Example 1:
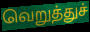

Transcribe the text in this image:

வெறுத்துச்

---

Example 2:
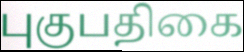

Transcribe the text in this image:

புகுபதிகை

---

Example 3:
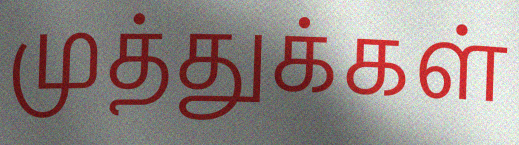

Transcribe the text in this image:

முத்துக்கள்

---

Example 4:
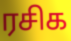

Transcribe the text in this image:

ரசிக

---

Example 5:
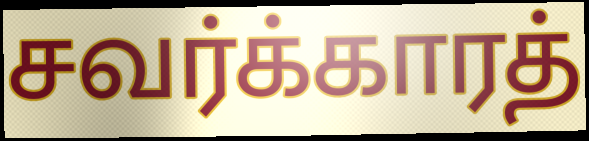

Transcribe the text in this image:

சவர்க்காரத்